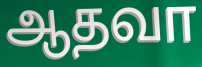
ஆதவா